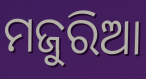
ମଜୁରିଆ